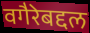
वगैरेबद्दल